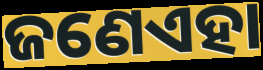
ଜଣେଏହା